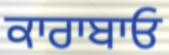
ਕਾਰਾਬਾਓ